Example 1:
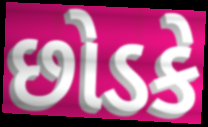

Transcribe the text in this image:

છોડકે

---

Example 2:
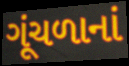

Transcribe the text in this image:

ગૂંચળાનાં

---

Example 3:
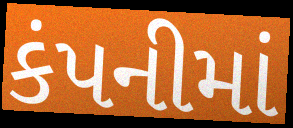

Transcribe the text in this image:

કંપનીમાં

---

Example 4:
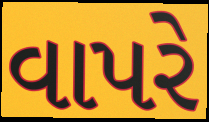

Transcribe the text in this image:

વાપરે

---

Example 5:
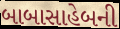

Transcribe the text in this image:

બાબાસાહેબની